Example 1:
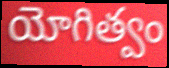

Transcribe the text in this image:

యోగిత్వం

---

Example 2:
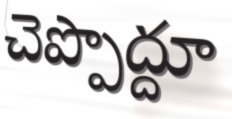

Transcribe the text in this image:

చెప్పొద్దూ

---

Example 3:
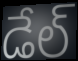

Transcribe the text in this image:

డేల్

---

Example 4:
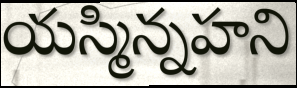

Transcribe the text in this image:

యస్మిన్నహని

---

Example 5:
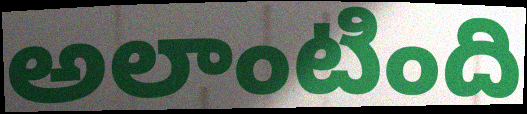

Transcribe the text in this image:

అలాంటింది